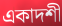
একাদশী